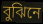
বুঝিনে